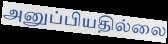
அனுப்பியதில்லை